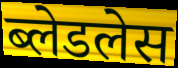
ब्लेडलेस